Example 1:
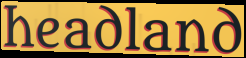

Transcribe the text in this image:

headland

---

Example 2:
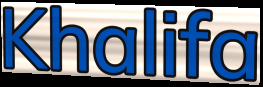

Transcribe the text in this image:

Khalifa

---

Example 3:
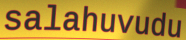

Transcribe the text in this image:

salahuvudu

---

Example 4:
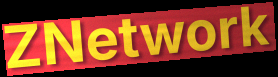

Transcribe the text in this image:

ZNetwork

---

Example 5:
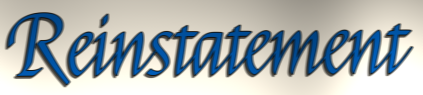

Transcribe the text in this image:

Reinstatement